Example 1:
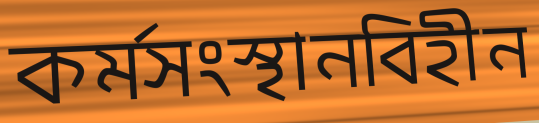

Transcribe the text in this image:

কর্মসংস্থানবিহীন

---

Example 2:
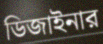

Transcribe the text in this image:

ডিজাইনার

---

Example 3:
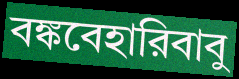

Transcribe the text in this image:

বঙ্কবেহারিবাবু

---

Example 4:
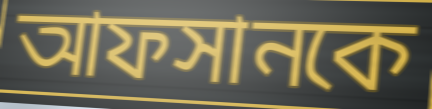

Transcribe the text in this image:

আফসানকে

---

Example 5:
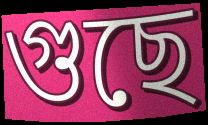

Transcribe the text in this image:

গুছে